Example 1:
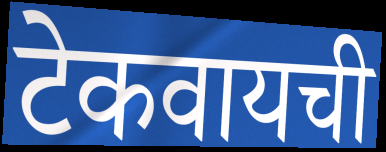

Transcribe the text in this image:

टेकवायची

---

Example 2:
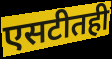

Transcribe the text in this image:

एसटीतही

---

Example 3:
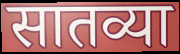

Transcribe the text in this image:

सातव्या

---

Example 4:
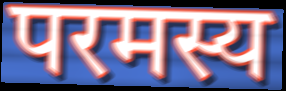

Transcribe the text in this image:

परमस्य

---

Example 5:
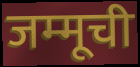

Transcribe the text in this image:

जम्मूची